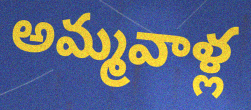
అమ్మవాళ్ల